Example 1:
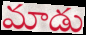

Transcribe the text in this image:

మాడు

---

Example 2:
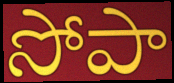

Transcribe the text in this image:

సోపా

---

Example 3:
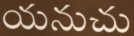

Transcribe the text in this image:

యనుచు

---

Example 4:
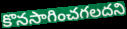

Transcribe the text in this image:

కొనసాగించగలదని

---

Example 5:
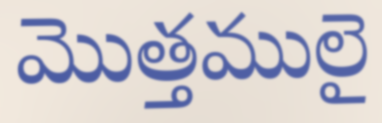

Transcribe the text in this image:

మొత్తములై